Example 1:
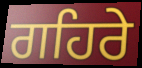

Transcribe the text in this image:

ਗਹਿਰੇ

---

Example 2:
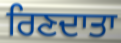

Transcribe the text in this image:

ਰਿਣਦਾਤਾ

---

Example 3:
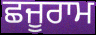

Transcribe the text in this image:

ਛਜੂਰਾਮ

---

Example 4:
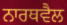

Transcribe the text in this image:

ਨਾਰਥਵੈਲ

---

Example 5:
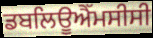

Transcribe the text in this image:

ਡਬਲਿਊਐੱਮਸੀਸੀ